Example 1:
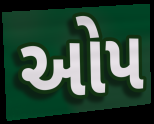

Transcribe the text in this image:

ઓપ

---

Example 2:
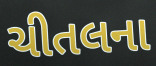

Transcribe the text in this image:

ચીતલના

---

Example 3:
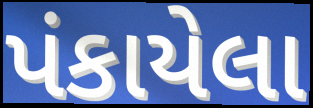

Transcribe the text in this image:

પંકાયેલા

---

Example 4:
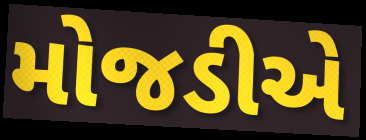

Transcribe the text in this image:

મોજડીએ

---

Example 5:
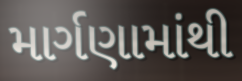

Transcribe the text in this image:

માર્ગણામાંથી